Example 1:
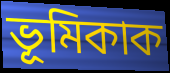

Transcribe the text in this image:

ভূমিকাক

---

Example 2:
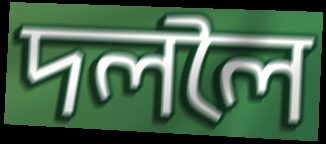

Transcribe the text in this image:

দললৈ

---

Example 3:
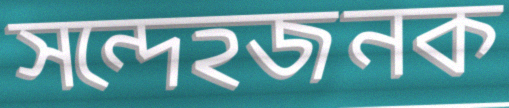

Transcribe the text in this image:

সন্দেহজনক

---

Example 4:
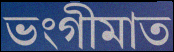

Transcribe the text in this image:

ভংগীমাত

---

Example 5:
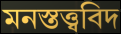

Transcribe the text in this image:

মনস্তত্ত্ববিদ